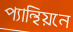
প্যান্থিয়নে